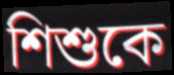
শিশুকে